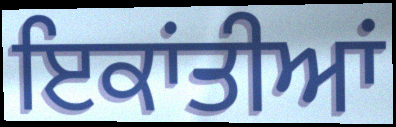
ਇਕਾਂਤੀਆਂ